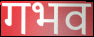
गभव